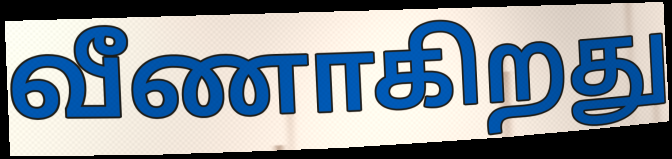
வீணாகிறது